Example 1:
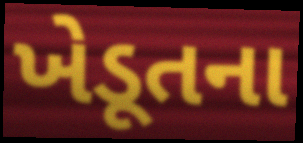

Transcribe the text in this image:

ખેડૂતના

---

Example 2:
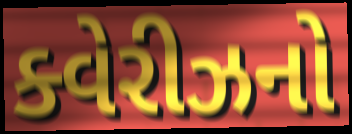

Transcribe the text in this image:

ક્વેરીઝનો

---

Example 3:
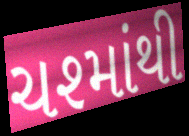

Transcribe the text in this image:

ચશ્માંથી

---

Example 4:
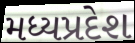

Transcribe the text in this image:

મધ્યપ્રદેશ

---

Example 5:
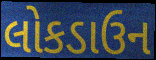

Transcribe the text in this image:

લોકડાઉન